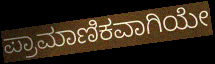
ಪ್ರಾಮಾಣಿಕವಾಗಿಯೇ